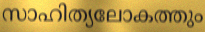
സാഹിത്യലോകത്തും